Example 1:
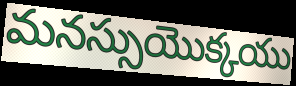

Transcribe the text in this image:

మనస్సుయొక్కయు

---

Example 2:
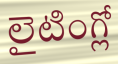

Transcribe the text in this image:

లైటింగ్లో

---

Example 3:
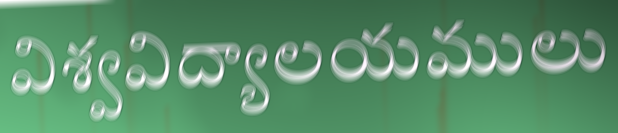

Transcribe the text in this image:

విశ్వవిద్యాలయములు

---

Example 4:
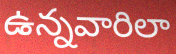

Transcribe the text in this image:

ఉన్నవారిలా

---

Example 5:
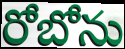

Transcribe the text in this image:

రోబోను